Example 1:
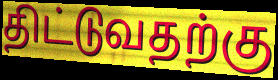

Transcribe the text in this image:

திட்டுவதற்கு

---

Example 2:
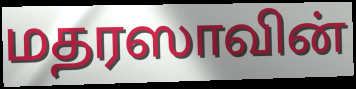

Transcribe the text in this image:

மதரஸாவின்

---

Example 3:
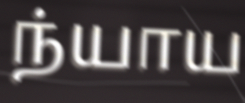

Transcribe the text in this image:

ந்யாய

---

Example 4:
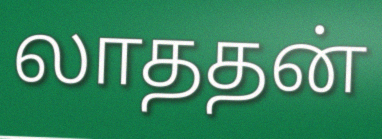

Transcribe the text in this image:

லாததன்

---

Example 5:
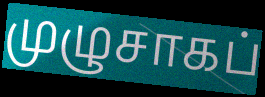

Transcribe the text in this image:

முழுசாகப்